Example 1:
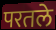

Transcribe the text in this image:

परतले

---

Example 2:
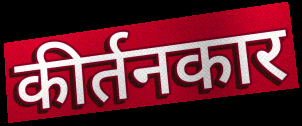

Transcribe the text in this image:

कीर्तनकार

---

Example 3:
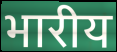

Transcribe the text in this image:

भारीय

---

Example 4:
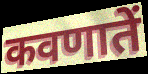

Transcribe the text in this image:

कवणातें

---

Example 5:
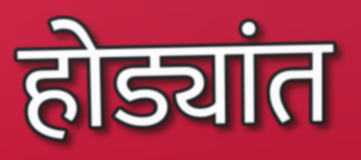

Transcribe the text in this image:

होड्यांत